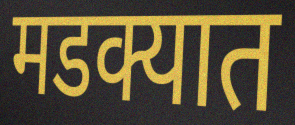
मडक्यात